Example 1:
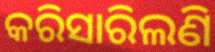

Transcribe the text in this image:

କରିସାରିଲଣି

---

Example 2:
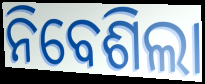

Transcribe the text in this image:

ନିବେଶିଲା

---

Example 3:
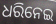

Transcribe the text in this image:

ଧରିନେଇ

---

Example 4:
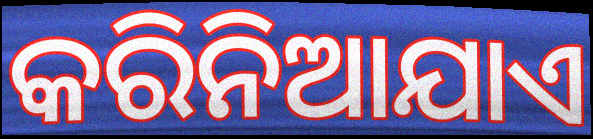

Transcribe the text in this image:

କରିନିଆଯାଏ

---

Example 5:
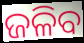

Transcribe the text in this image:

ଜଳିବ